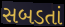
સબડતાં